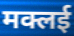
मक्लई